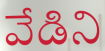
వేడిని